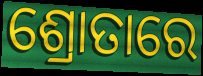
ଶ୍ରୋତାରେ